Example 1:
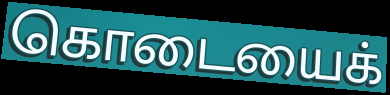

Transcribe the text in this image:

கொடையைக்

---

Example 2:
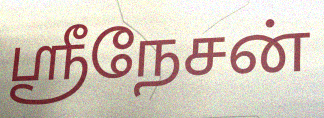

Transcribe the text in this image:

ஸ்ரீநேசன்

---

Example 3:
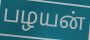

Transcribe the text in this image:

பழயன்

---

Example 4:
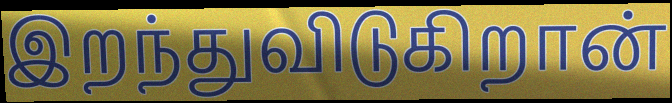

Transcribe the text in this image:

இறந்துவிடுகிறான்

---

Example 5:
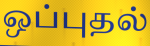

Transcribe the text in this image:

ஒப்புதல்